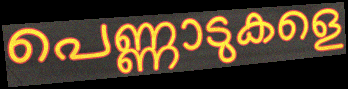
പെണ്ണാടുകളെ